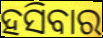
ହସିବାର